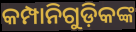
କମ୍ପାନିଗୁଡ଼ିକଙ୍କ